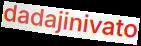
dadajinivato